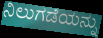
ನಿಲುಗಡೆಯನ್ನು